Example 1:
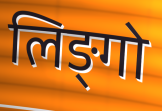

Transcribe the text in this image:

लिङ्गो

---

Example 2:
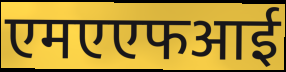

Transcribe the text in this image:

एमएएफआई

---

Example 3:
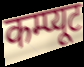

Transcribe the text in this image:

कम्प्यूट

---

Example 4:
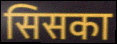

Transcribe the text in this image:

सिसका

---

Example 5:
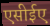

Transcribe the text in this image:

एसीईए